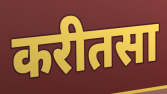
करीतसा